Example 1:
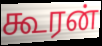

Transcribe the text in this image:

கூரன்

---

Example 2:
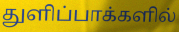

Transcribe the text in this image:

துளிப்பாக்களில்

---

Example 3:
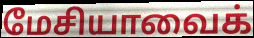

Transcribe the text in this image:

மேசியாவைக்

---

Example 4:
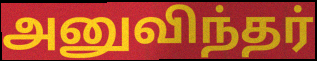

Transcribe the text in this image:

அனுவிந்தர்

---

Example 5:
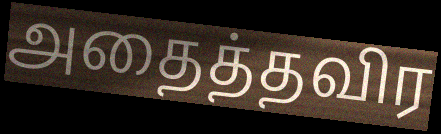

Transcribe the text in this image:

அதைத்தவிர